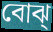
বোঝ্